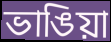
ভাঙিয়া